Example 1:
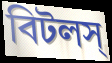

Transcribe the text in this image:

বিটলস্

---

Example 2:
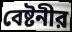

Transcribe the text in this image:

বেষ্টনীর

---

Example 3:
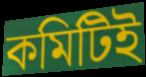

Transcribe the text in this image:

কমিটিই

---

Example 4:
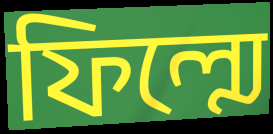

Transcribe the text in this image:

ফিল্মে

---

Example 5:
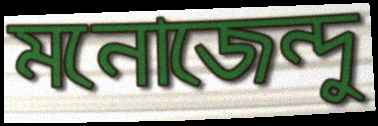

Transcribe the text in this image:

মনোজেন্দু